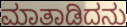
ಮಾತಾಡಿದನು